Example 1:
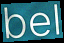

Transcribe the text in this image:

bel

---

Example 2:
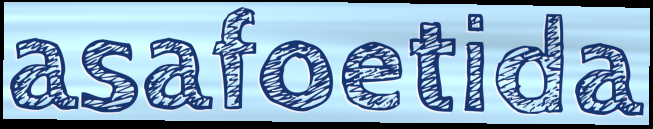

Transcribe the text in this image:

asafoetida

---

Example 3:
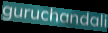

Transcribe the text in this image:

guruchandali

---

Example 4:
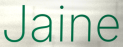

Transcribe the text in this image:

Jaine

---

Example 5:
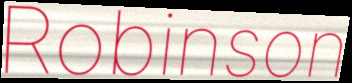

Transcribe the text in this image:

Robinson